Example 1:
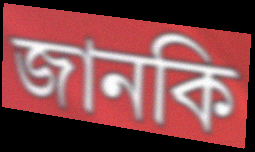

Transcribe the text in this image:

জানকি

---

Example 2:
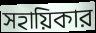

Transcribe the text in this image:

সহায়িকার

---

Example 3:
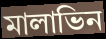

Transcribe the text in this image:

মালাভিন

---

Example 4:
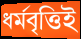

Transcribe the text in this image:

ধর্মবৃত্তিই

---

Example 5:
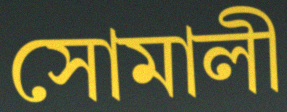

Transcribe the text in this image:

সোমালী